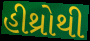
હીથ્રોથી